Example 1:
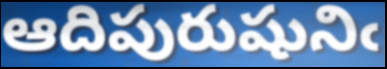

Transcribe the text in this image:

ఆదిపురుషునిఁ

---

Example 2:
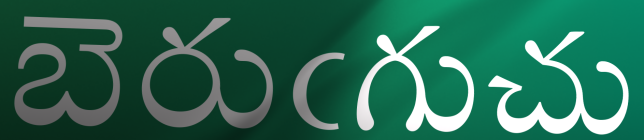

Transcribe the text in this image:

బెరుఁగుచు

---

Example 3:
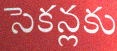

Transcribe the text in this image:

సెకన్లకు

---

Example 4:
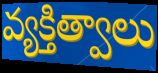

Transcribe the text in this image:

వ్యక్తిత్వాలు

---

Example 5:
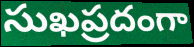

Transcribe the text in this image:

సుఖప్రదంగా